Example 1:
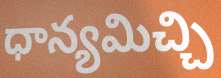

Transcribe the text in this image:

ధాన్యమిచ్చి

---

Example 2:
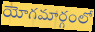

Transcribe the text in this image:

యోగమార్గంలో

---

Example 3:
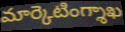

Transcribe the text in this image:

మార్కెటింగ్శాఖ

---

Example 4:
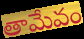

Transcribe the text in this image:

తామేవం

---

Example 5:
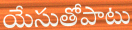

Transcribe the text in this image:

యేసుతోపాటు